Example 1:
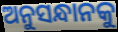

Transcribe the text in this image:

ଅନୁସନ୍ଧାନକୁ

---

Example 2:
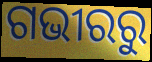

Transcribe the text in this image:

ଗଭୀରରୁ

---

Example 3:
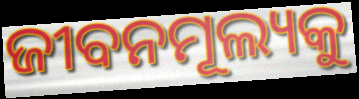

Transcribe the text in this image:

ଜୀବନମୂଲ୍ୟକୁ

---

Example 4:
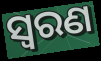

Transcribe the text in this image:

ସ୍ୱରଣ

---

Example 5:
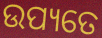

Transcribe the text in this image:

ଉପ୍ୟତେ